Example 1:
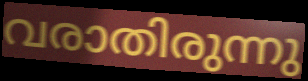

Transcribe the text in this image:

വരാതിരുന്നു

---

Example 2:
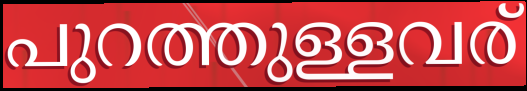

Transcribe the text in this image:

പുറത്തുള്ളവര്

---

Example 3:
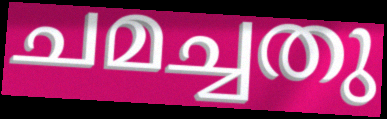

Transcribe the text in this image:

ചമച്ചതു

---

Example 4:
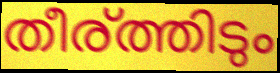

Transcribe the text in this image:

തീര്ത്തിടും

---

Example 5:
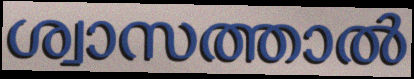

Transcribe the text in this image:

ശ്വാസത്താൽ